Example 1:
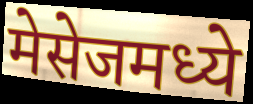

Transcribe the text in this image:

मेसेजमध्ये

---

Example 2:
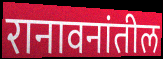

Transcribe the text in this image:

रानावनांतील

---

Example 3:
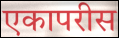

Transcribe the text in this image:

एकापरीस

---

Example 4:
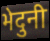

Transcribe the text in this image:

भेदुनी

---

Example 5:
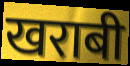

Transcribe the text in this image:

खराबी